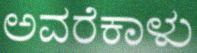
ಅವರೆಕಾಳು